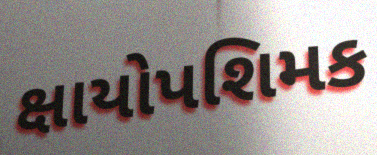
ક્ષાયોપશિમક